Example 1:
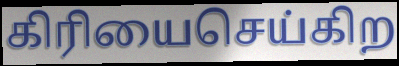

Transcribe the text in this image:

கிரியைசெய்கிற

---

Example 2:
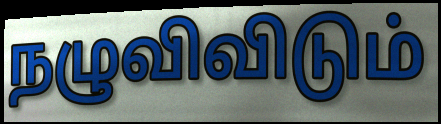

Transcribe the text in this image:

நழுவிவிடும்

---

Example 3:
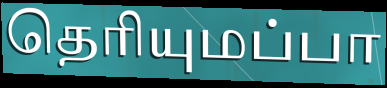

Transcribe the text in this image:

தெரியுமப்பா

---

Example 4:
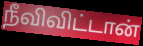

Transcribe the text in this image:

நீவிவிட்டான்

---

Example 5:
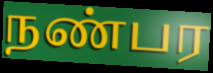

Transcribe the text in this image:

நண்பர